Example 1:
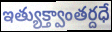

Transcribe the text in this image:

ఇత్యుక్త్వాంతర్దధే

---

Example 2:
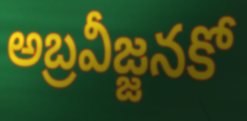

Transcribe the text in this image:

అబ్రవీజ్జనకో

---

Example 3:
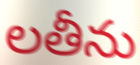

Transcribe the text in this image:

లతీను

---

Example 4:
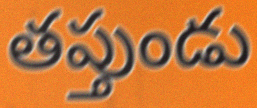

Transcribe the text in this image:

తప్తుండు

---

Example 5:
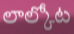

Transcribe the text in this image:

లాల్కోట